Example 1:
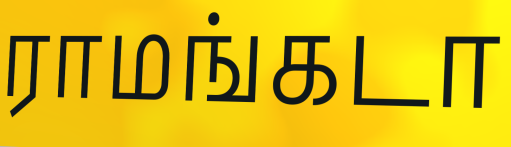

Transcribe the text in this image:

ராமங்கடா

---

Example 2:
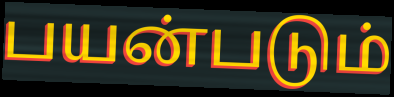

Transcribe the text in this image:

பயன்படும்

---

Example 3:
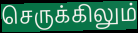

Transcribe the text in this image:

செருக்கிலும்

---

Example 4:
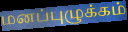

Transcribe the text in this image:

மனப்புழுக்கம்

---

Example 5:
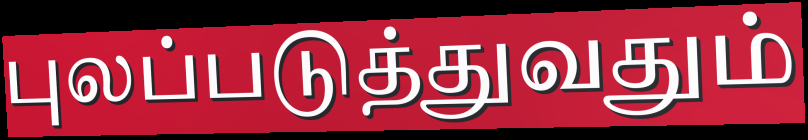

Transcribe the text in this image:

புலப்படுத்துவதும்